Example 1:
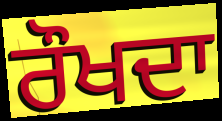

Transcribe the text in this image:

ਰੌਖਦਾ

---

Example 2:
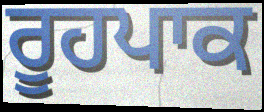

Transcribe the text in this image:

ਰੂਹਪਾਕ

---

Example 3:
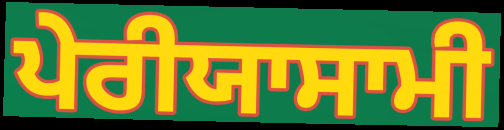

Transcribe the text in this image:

ਪੇਰੀਯਾਸਾਮੀ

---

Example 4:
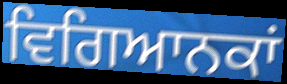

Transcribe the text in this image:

ਵਿਗਿਆਨਕਾਂ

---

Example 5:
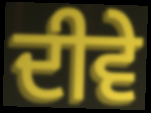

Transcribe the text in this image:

ਦੀਵੇ